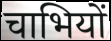
चाभियों